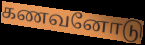
கணவனோடு